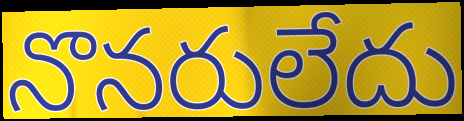
నొనరులేదు